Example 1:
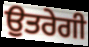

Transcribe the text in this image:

ਉਤਰੇਗੀ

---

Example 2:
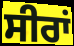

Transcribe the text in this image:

ਸੀਰਾਂ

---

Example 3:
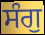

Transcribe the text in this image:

ਸੰਗੁ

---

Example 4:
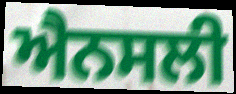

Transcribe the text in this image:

ਐਨਸਲੀ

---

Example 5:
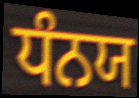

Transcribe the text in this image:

ਧੰਨਯ